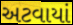
અટવાયાં